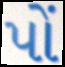
પોં